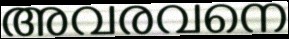
അവരവനെ